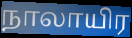
நாலாயிர